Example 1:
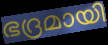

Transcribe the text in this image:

ഭദ്രമായി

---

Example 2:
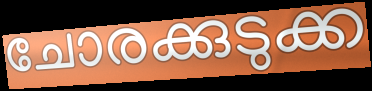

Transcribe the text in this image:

ചോരക്കുടുക്ക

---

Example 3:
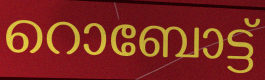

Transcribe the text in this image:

റൊബോട്ട്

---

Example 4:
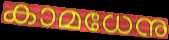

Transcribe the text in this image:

കാമധേനു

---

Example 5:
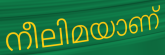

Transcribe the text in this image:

നീലിമയാണ്